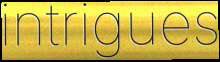
intrigues